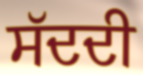
ਸੱਦਦੀ